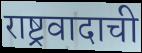
राष्ट्रवादाची